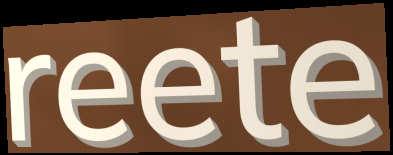
reete